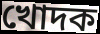
খোদক